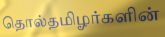
தொல்தமிழர்களின்